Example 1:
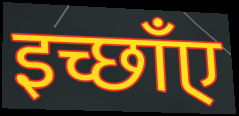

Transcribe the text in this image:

इच्छाँए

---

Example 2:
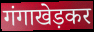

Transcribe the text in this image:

गंगाखेड़कर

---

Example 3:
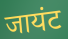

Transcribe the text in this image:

जायंट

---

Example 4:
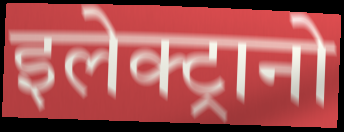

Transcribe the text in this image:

इलेक्ट्रानो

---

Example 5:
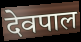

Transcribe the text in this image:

देवपाल